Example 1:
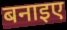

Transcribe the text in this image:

बनाइए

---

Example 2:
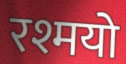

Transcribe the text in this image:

रश्मयो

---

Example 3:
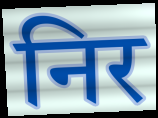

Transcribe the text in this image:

निर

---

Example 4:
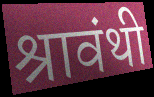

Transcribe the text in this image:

श्रावंथी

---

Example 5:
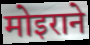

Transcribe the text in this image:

मोइराने